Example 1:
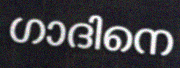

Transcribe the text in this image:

ഗാദിനെ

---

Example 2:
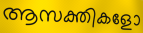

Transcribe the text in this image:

ആസക്തികളോ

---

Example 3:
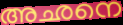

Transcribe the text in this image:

അഛനെ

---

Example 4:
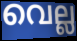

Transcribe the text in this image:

വെല്ല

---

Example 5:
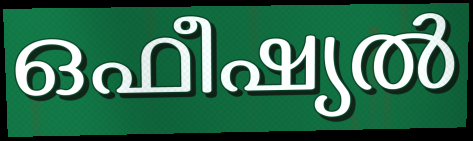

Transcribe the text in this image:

ഒഫീഷ്യൽ